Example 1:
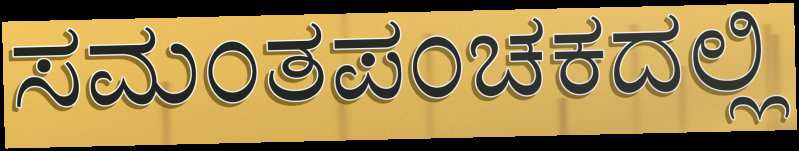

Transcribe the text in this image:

ಸಮಂತಪಂಚಕದಲ್ಲಿ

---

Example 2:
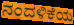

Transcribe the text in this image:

ನಂದಳಿಕೆಯ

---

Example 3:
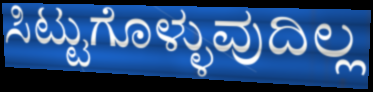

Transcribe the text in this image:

ಸಿಟ್ಟುಗೊಳ್ಳುವುದಿಲ್ಲ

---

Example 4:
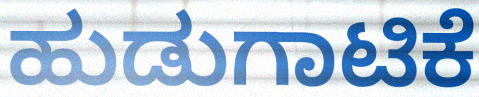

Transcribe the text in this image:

ಹುಡುಗಾಟಿಕೆ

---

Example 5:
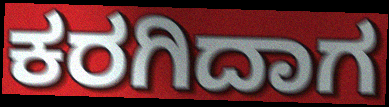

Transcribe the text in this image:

ಕರಗಿದಾಗ